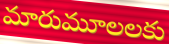
మారుమూలలకు